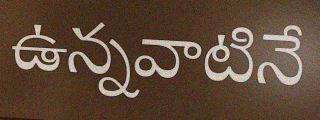
ఉన్నవాటినే